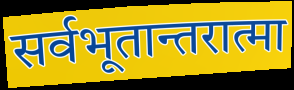
सर्वभूतान्तरात्मा